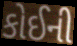
કોઈની